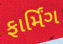
ફાર્મિંગ